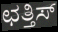
ಛತ್ತಿಸ್